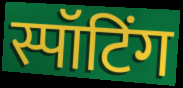
स्पॉटिंग